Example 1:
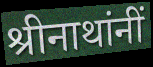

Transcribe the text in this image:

श्रीनाथांनीं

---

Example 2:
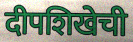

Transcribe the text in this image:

दीपशिखेची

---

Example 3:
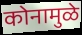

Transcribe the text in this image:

कोनामुळे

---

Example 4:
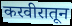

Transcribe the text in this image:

करवीरातून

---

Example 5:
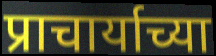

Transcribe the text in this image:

प्राचार्याच्या